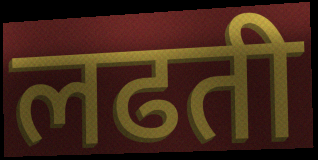
लढती